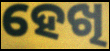
ହେଖି